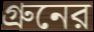
গ্রুনের